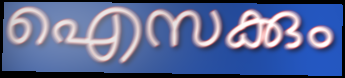
ഐസക്കും